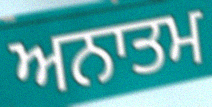
ਅਨਾਤਮ